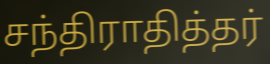
சந்திராதித்தர்